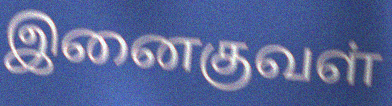
இனைகுவள்